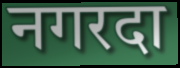
नगरदा